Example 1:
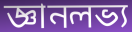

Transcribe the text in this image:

জ্ঞানলভ্য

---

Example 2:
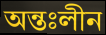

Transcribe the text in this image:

অন্তঃলীন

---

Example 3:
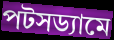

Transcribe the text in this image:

পটসড্যামে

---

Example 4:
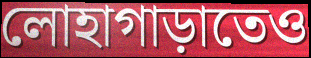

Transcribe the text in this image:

লোহাগাড়াতেও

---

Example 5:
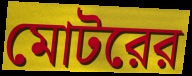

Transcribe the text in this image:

মোটরের